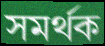
সমর্থক